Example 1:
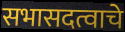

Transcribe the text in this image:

सभासदत्वाचे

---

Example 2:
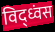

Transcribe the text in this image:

विद्ध्वंस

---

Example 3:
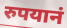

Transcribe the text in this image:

रुपयानं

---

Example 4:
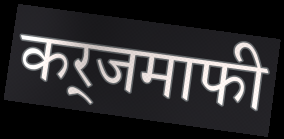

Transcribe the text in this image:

कर्जमाफी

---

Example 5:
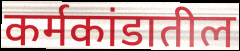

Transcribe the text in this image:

कर्मकांडातील